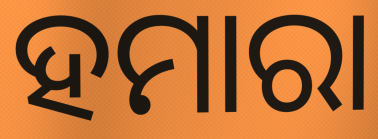
ହମାରା